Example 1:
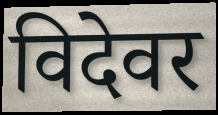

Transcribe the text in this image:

विदेवर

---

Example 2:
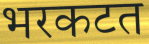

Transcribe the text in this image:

भरकटत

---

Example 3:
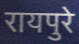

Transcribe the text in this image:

रायपुरे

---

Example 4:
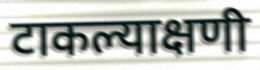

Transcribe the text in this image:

टाकल्याक्षणी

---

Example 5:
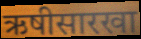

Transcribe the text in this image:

ऋषीसारखा